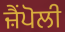
ਜ਼ੈਂਪੋਲੀ